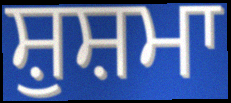
ਸ਼ੁਸ਼ਮਾ